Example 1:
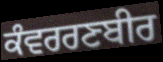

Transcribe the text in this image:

ਕੰਵਰਰਣਬੀਰ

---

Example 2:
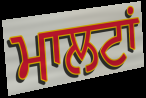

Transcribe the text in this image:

ਮਾਲਟਾਂ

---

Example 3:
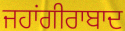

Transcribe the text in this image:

ਜਹਾਂਗੀਰਾਬਾਦ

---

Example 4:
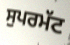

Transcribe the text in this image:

ਸੁਪਰਮੱਟ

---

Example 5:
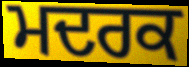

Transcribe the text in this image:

ਮਦਰਕ